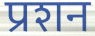
प्रशन